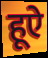
हूऐ